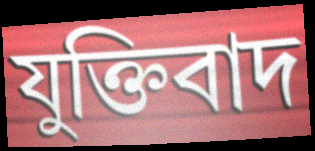
যুক্তিবাদ